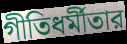
গীতিধর্মীতার